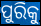
ପୁରିକୁ